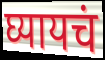
घ्यायचं